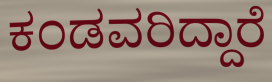
ಕಂಡವರಿದ್ದಾರೆ